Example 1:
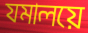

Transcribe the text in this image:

যমালয়ে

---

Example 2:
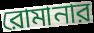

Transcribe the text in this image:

রোমানার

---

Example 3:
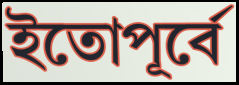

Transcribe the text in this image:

ইতোপূর্বে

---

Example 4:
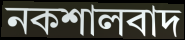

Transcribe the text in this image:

নকশালবাদ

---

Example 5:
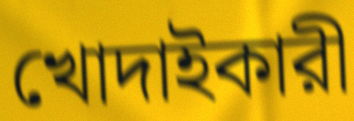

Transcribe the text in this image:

খোদাইকারী